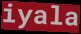
iyala